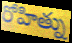
రోహిత్ను